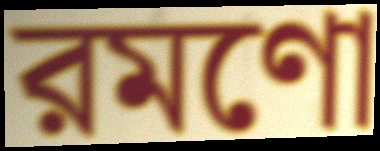
রমণো